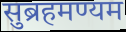
सुब्रहमण्यम